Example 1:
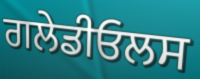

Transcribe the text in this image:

ਗਲੇਡੀਓਲਸ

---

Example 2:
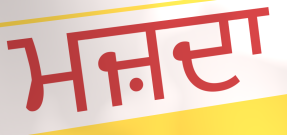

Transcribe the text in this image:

ਮਜ਼ਦਾ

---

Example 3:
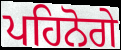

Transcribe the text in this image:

ਪਹਿਨੋਗੇ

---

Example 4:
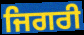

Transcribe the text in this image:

ਜਿਗਰੀ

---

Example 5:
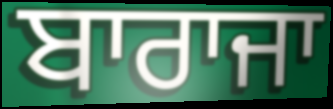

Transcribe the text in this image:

ਬਾਰਾਜਾ